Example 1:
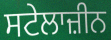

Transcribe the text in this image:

ਸਟੇਲਾਜ਼ੀਨ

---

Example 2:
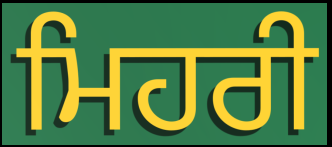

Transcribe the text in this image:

ਮਿਹਰੀ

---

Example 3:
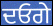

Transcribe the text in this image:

ਦਓਗੇ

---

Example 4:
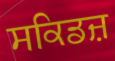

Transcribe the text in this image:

ਸਕਿਡਜ਼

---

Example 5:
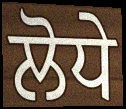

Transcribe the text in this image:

ਲੋਧੇ